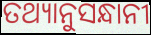
ତଥ୍ୟାନୁସନ୍ଧାନୀ